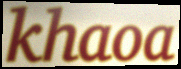
khaoa